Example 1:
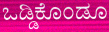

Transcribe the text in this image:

ಒಡ್ಡಿಕೊಂಡೂ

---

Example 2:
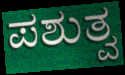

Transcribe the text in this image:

ಪಶುತ್ವ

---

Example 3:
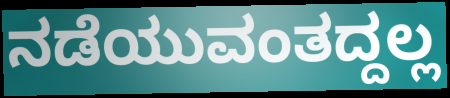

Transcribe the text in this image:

ನಡೆಯುವಂತದ್ದಲ್ಲ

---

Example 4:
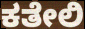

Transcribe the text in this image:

ಕತೇಲಿ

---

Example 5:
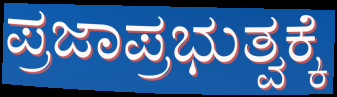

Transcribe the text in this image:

ಪ್ರಜಾಪ್ರಭುತ್ವಕ್ಕೆ